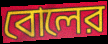
বোলের